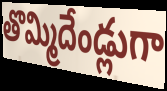
తొమ్మిదేండ్లుగా